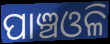
ପାଞ୍ଚଓଳି